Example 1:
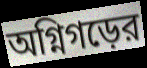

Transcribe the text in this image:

অগ্নিগড়ের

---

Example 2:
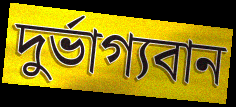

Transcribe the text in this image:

দুর্ভাগ্যবান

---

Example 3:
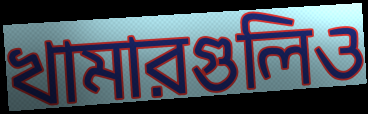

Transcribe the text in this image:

খামারগুলিও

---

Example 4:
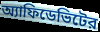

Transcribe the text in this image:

অ্যাফিডেভিটের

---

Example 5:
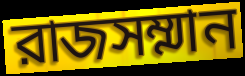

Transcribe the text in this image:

রাজসম্মান